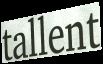
tallent